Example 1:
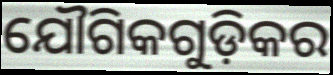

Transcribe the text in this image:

ଯୌଗିକଗୁଡ଼ିକର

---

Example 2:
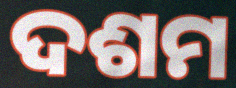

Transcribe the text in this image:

ଦଶମ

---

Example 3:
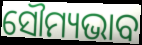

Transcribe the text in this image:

ସୌମ୍ୟଭାବ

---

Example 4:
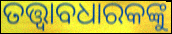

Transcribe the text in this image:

ତତ୍ତ୍ଵାବଧାରକଙ୍କୁ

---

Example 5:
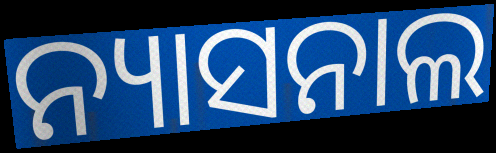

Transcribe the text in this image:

ନ୍ୟାସନାଲ